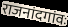
राजनांदगांवः